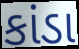
કાંડા